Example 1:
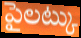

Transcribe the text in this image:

పైలట్కు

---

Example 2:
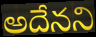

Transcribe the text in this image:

అదేనని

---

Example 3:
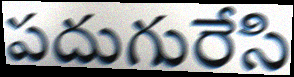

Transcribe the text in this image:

పదుగురేసి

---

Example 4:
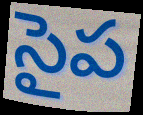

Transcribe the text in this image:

సైప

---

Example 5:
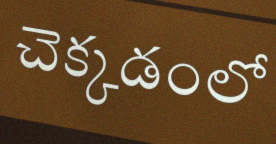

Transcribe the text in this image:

చెక్కడంలో